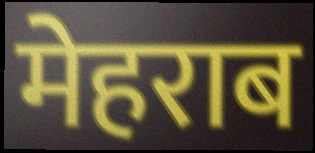
मेहराब